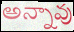
అన్నావు